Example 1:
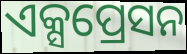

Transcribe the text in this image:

ଏକ୍ସପ୍ରେସନ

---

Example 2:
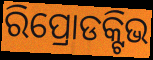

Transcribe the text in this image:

ରିପ୍ରୋଡକ୍ଟିଭ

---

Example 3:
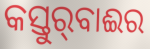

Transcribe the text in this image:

କସ୍ତୁର୍‍ବାଈର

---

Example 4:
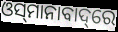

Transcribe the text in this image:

ଓସ୍‌ମାନାବାଦ୍‌ରେ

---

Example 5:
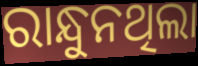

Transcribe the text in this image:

ରାନ୍ଧୁନଥିଲା